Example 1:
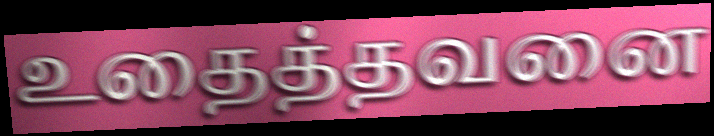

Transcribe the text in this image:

உதைத்தவனை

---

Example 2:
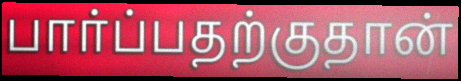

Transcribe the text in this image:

பார்ப்பதற்குதான்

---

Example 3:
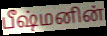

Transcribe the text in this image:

பீஷ்மனின்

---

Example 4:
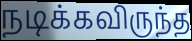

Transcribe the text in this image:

நடிக்கவிருந்த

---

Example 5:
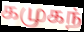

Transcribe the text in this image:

கமுகந்